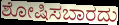
ಶೋಷಿಸಬಾರದು